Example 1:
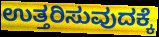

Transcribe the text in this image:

ಉತ್ತರಿಸುವುದಕ್ಕೆ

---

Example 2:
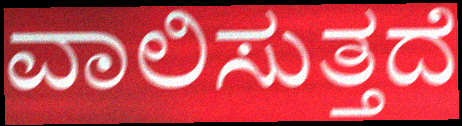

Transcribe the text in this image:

ವಾಲಿಸುತ್ತದೆ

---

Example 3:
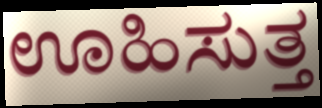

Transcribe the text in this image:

ಊಹಿಸುತ್ತ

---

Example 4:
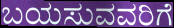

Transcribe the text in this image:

ಬಯಸುವವರಿಗೆ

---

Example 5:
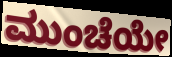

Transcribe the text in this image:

ಮುಂಚೆಯೇ